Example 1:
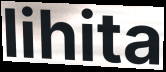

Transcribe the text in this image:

lihita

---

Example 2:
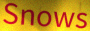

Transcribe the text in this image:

Snows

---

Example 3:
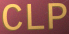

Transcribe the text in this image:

CLP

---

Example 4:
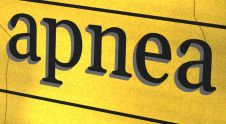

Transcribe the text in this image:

apnea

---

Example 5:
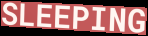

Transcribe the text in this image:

SLEEPING